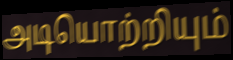
அடியொற்றியும்